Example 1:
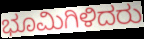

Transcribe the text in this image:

ಭೂಮಿಗಿಳಿದರು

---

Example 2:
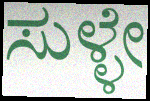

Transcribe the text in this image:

ಸುಳ್ಳೇ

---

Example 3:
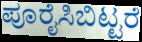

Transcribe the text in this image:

ಪೂರೈಸಿಬಿಟ್ಟರೆ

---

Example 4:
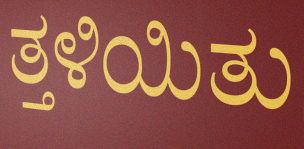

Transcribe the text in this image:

ತ್ತಳಿಯಿತು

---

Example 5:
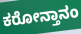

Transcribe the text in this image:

ಕರೋನ್ತಾನಂ